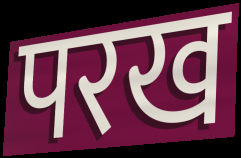
परख